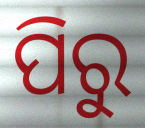
ପିରୁ